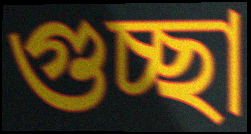
গুচ্ছা